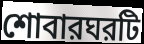
শোবারঘরটি